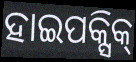
ହାଇପକ୍ସିକ୍